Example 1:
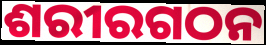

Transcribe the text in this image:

ଶରୀରଗଠନ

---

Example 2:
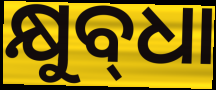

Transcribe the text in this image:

କ୍ଷୁବ୍‌ଧା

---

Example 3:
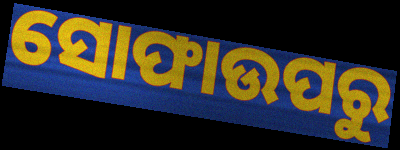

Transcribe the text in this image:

ସୋଫାଉପରୁ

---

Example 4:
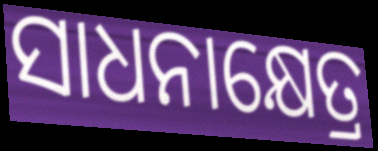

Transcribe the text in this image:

ସାଧନାକ୍ଷେତ୍ର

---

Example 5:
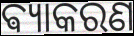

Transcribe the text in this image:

ଵ୍ଯାକରଣ